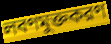
লবণমুক্তকরণ